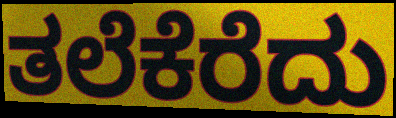
ತಲೆಕೆರೆದು